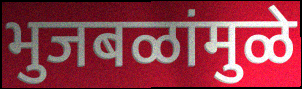
भुजबळांमुळे